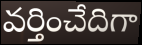
వర్తించేదిగా